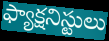
ఫ్యాక్షనిస్టులు